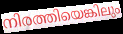
നിരത്തിയെങ്കിലും